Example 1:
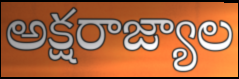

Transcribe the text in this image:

అక్షరాజ్యాల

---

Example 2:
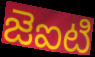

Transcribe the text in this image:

జెఐటి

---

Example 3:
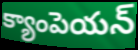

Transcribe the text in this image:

క్యాంపెయన్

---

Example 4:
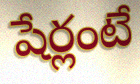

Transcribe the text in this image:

షేర్లంటే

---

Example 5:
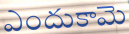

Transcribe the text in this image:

ఎందుకామె